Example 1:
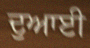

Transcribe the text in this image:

ਦੁਆਈ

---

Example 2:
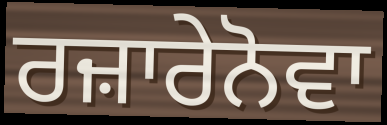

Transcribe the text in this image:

ਰਜ਼ਾਰੇਨੋਵਾ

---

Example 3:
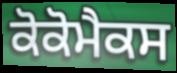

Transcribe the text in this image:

ਕੋਕੋਮੈਕਸ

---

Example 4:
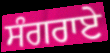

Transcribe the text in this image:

ਸੰਗਰਾਏ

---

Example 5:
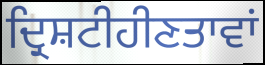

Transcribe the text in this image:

ਦ੍ਰਿਸ਼ਟੀਹੀਣਤਾਵਾਂ